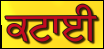
ਕਟਾਈ